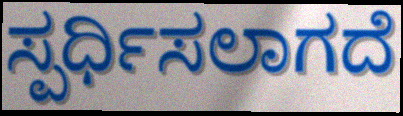
ಸ್ಪರ್ಧಿಸಲಾಗದೆ